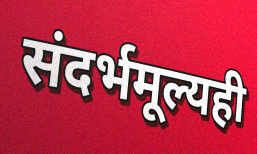
संदर्भमूल्यही